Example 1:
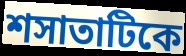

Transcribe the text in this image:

শসাতাটিকে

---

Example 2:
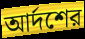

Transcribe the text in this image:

আর্দশের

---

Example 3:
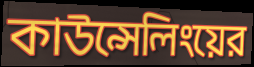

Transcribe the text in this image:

কাউন্সেলিংয়ের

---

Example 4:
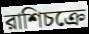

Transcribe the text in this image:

রাশিচক্রে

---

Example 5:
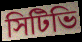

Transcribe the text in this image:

সিটিভি